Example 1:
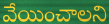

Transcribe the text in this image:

వేయించాలని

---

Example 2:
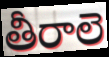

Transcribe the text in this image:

తీరాలె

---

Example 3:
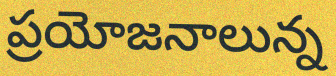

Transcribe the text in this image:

ప్రయోజనాలున్న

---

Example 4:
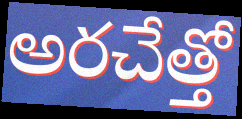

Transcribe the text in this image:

అరచేత్తో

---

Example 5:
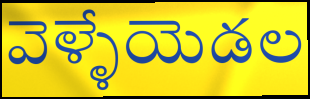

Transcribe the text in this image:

వెళ్ళేయెడల